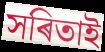
সৰিতাই